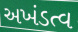
અખંડત્વ